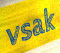
vsak